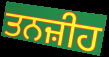
ਤਨਜ਼ੀਹ